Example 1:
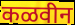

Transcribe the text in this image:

कळवीन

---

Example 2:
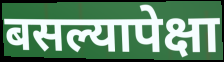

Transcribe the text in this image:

बसल्यापेक्षा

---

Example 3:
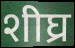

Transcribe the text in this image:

शीघ्र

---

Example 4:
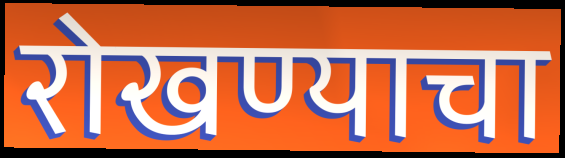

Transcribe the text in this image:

रोखण्याचा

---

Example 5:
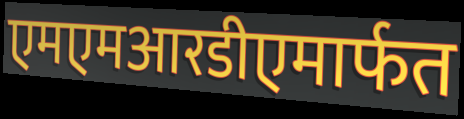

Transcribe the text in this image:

एमएमआरडीएमार्फत